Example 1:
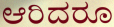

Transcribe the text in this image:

ಆರಿದರೂ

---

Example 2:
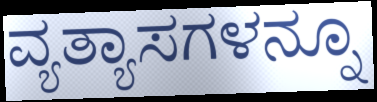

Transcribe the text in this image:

ವ್ಯತ್ಯಾಸಗಳನ್ನೂ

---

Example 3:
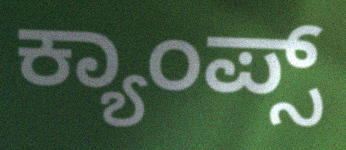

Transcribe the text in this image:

ಕ್ಯಾಂಪ್ಸ್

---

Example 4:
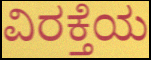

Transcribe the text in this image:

ವಿರಕ್ತೆಯ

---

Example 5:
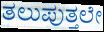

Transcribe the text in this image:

ತಲುಪುತ್ತಲೇ